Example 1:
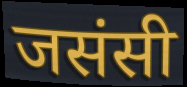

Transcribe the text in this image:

जसंसी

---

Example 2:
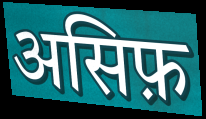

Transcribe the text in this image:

असिफ़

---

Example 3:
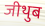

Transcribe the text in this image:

जीथुब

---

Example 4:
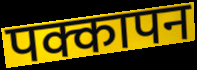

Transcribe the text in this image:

पक्कापन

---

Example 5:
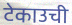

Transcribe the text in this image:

टेकाउची